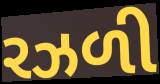
રઝળી